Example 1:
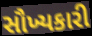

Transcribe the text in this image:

સૌખ્યકારી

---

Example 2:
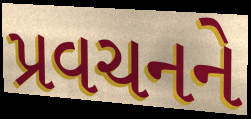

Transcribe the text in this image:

પ્રવચનને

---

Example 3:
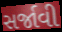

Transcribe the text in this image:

સર્જાવી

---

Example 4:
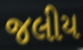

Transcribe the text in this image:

જલીય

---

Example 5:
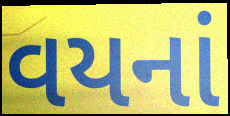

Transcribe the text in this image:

વયનાં